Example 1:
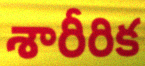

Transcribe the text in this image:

శారీరిక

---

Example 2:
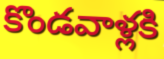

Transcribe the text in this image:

కొండవాళ్లకి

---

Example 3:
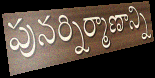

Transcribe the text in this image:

పునర్నిర్మాణాన్ని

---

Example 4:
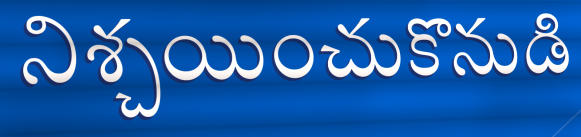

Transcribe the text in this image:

నిశ్చయించుకొనుడి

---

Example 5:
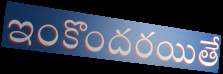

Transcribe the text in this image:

ఇంకొందరయితే